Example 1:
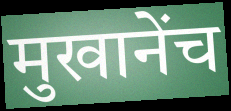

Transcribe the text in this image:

मुखानेंच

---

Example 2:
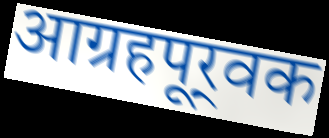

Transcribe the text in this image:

आग्रहपूर्वक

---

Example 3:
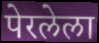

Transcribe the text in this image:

पेरलेला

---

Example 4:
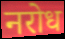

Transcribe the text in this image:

नरोध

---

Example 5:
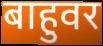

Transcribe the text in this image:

बाहुवर